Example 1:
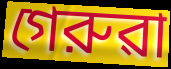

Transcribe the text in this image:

গেৰুৱা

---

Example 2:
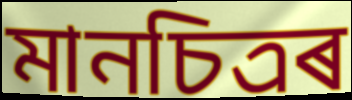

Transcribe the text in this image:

মানচিত্ৰৰ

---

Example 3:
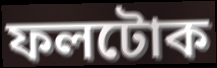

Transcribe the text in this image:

ফলটোক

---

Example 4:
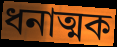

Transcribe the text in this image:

ধনাত্মক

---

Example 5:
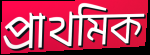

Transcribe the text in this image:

প্ৰাথমিক